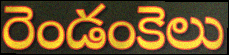
రెండంకెలు